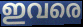
ഇവരെ